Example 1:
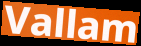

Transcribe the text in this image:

Vallam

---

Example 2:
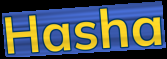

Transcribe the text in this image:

Hasha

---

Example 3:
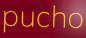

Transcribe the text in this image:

pucho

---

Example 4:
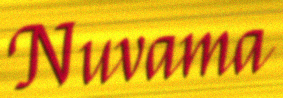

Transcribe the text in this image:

Nuvama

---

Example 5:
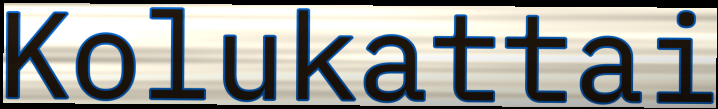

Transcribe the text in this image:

Kolukattai